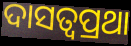
ଦାସତ୍ୱପ୍ରଥା